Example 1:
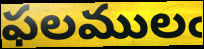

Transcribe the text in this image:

ఫలములఁ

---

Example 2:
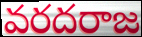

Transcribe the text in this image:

వరదరాజ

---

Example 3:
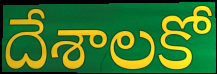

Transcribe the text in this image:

దేశాలకో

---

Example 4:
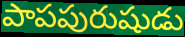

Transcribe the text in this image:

పాపపురుషుడు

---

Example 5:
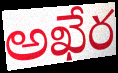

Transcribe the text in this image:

అఖేర